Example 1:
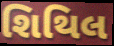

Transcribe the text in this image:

શિથિલ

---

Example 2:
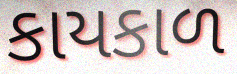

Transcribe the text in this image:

કાયકાળ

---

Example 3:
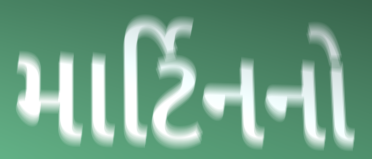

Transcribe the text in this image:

માર્ટિનનો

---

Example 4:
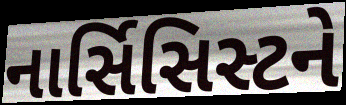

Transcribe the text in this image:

નાર્સિસિસ્ટને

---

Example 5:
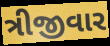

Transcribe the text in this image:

ત્રીજીવાર